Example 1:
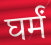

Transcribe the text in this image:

घर्मं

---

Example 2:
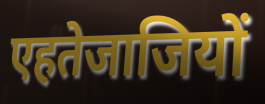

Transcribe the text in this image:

एहतेजाजियों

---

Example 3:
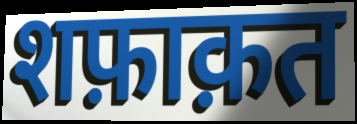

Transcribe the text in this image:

शफ़ाक़त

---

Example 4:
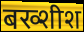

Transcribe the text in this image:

बख्शीश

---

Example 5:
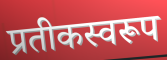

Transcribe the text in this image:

प्रतीकस्वरूप